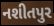
નશીતપુર